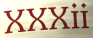
XXXii